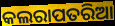
କଲରାପତରିଆ